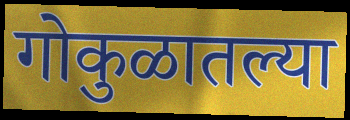
गोकुळातल्या